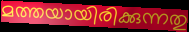
മത്തയായിരിക്കുന്നതു